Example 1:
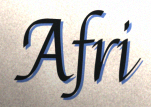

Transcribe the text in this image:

Afri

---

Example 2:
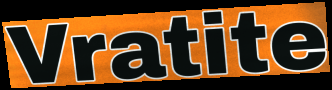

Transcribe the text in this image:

Vratite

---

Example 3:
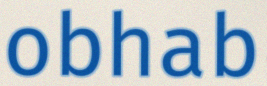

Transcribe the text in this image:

obhab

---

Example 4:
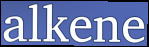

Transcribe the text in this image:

alkene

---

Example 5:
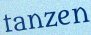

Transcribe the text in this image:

tanzen